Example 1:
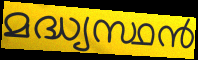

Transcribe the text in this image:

മദ്ധ്യസ്ഥൻ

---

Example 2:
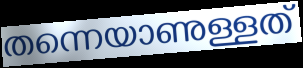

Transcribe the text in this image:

തന്നെയാണുള്ളത്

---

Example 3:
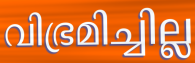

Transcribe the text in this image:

വിഭ്രമിച്ചില്ല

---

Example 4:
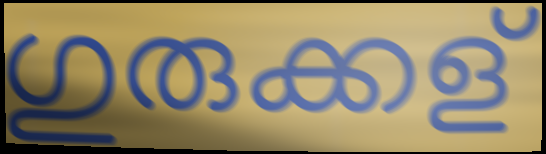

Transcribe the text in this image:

ഗുരുക്കള്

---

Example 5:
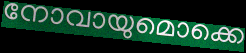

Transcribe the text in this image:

നോവായുമൊക്കെ